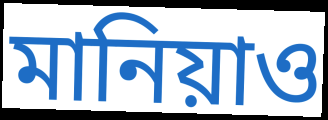
মানিয়াও